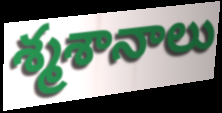
శ్మశానాలు